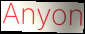
Anyon